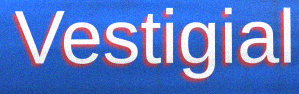
Vestigial